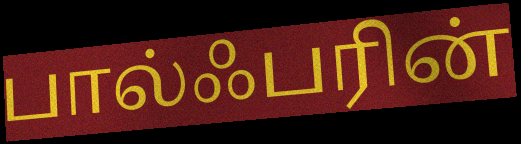
பால்ஃபரின்